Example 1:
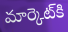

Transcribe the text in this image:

మార్కెట్‌కి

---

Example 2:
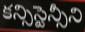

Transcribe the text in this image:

కన్సిస్టెన్సీని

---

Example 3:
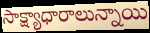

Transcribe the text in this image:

సాక్ష్యాధారాలున్నాయి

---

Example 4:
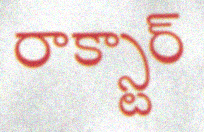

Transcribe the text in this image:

రాక్స్టార్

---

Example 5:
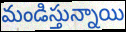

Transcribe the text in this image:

మండిస్తున్నాయి